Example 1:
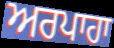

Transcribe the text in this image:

ਅਰਪਾਹਾ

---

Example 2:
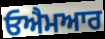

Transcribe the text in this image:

ਓਐਮਆਰ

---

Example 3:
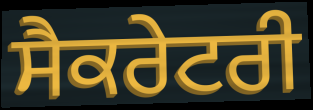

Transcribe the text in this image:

ਸੈਕਰੇਟਰੀ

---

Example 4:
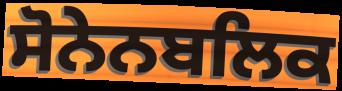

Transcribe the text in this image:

ਸੋਨੇਨਬਲਿਕ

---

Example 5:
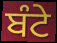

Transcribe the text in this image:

ਬੰਟੇ